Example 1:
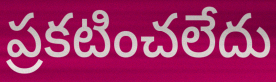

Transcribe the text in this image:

ప్రకటించలేదు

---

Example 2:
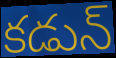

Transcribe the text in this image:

కడున్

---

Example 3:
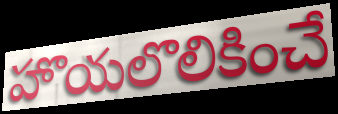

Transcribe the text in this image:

హొయలొలికించే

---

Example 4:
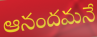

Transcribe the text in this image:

ఆనందమనే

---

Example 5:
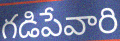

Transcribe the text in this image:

గడిపేవారి